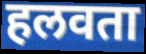
हलवता